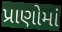
પ્રાણોમાં